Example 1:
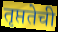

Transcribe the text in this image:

तृप्ततेची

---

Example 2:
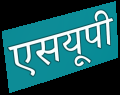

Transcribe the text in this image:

एसयूपी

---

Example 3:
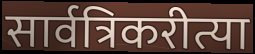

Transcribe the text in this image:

सार्वत्रिकरीत्या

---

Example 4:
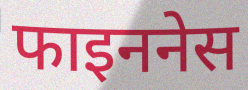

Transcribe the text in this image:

फाइननेस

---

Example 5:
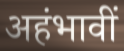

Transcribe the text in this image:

अहंभावीं